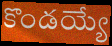
కొండయ్యే